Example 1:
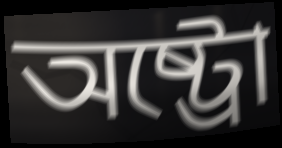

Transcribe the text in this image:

অষ্ট্ৰো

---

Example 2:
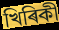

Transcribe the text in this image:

খিৰিকী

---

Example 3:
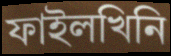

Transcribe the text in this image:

ফাইলখিনি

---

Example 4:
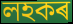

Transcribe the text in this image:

লহকৰ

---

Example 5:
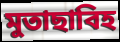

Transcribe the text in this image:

মুতাছাবিহ